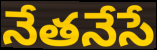
నేతనేసే